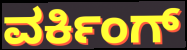
ವರ್ಕಿಂಗ್